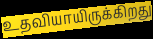
உதவியாயிருக்கிறது